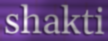
shakti